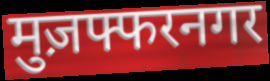
मुज़फ्फरनगर